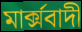
মাৰ্ক্সবাদী